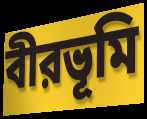
বীরভূমি